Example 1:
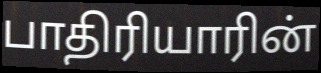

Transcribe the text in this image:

பாதிரியாரின்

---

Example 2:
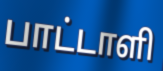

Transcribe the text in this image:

பாட்டாளி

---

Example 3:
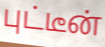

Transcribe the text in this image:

புட்டீன்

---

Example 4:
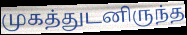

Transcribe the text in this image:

முகத்துடனிருந்த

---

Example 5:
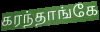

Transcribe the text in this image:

கரந்தாங்கே